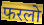
फरलो